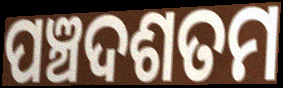
ପଞ୍ଚଦଶତମ